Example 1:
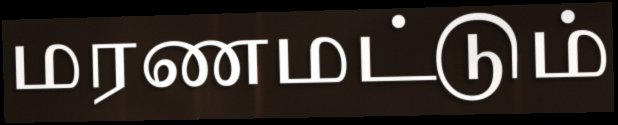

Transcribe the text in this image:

மரணமட்டும்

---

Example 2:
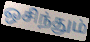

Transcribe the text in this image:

ஒசிந்தும்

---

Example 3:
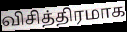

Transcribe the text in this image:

விசித்திரமாக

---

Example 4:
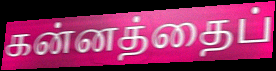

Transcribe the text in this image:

கன்னத்தைப்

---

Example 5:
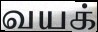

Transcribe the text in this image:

வயக்